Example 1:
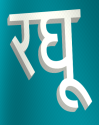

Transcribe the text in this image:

रघू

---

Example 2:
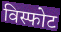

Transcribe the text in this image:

विस्फोट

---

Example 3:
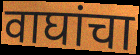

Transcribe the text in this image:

वाघांचा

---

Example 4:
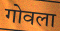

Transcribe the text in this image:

गोवला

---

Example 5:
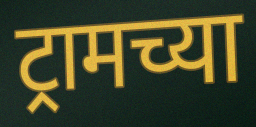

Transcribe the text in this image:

ट्रामच्या